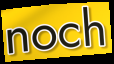
noch